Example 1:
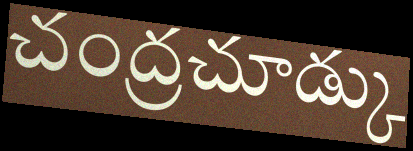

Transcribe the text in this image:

చంద్రచూడ్కు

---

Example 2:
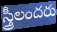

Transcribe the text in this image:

స్త్రీలందరు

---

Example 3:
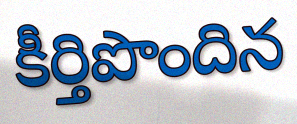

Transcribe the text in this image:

కీర్తిపొందిన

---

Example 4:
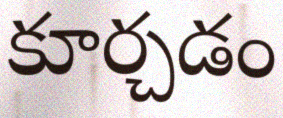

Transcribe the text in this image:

కూర్చడం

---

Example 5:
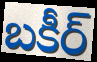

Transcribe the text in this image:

బకీర్